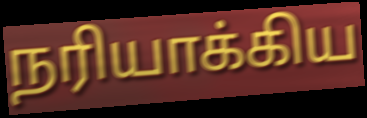
நரியாக்கிய